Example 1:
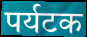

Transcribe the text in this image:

पर्यटक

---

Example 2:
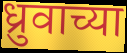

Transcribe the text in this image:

ध्रुवाच्या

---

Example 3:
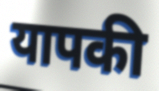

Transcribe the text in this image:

यापकी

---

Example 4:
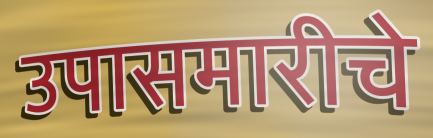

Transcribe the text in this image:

उपासमारीचे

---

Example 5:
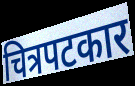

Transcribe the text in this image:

चित्रपटकार